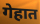
गेहात